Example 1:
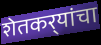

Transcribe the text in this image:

शेतकर्‍यांचा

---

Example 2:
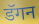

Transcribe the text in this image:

डॅगन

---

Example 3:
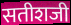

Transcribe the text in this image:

सतीशजी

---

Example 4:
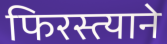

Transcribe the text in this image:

फिरस्त्याने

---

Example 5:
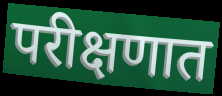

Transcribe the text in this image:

परीक्षणात